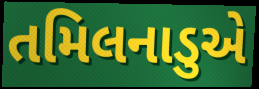
તમિલનાડુએ